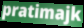
pratimajk